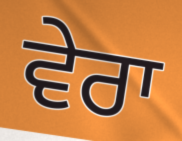
ਵੇਰਾ